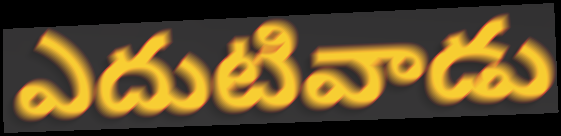
ఎదుటివాడు